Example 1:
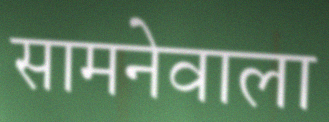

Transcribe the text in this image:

सामनेवाला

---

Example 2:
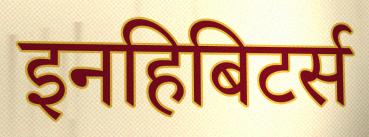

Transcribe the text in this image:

इनहिबिटर्स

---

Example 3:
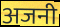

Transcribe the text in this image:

अजनी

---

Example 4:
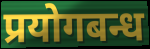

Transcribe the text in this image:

प्रयोगबन्ध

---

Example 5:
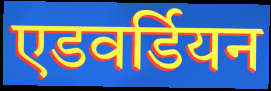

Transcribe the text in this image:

एडवर्डियन